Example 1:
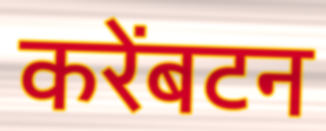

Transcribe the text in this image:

करेंबटन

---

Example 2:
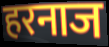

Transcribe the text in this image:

हरनाज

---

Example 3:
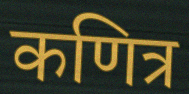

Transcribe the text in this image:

कणित्र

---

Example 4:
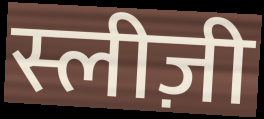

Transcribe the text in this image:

स्लीज़ी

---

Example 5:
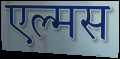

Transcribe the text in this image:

एल्मस